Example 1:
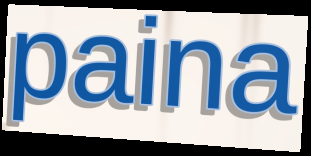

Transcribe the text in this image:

paina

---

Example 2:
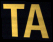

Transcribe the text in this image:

TA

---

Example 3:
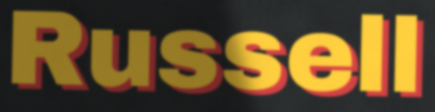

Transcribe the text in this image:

Russell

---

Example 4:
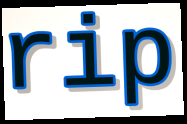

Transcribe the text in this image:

rip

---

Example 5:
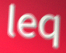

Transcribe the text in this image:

leq